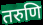
तरुणि